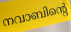
നവാബിന്റെ